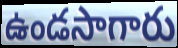
ఉండసాగారు